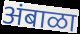
अंबाळा